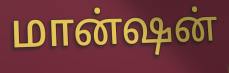
மான்ஷன்